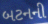
બટનની